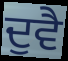
ਦੁਵੈ